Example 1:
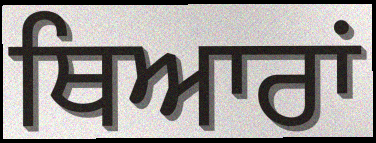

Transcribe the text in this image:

ਥਿਆਰਾਂ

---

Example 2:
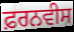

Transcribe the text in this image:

ਫ਼ਰਨਵੀਸ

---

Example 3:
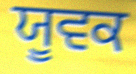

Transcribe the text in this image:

ਯੂਵਕ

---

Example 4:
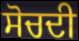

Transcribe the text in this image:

ਸੋਚਦੀ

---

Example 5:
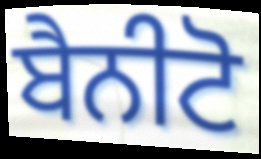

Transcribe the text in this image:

ਬੈਨੀਟੋ